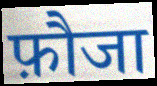
फ़ौजा